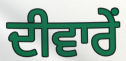
ਦੀਵਾਰੇਂ